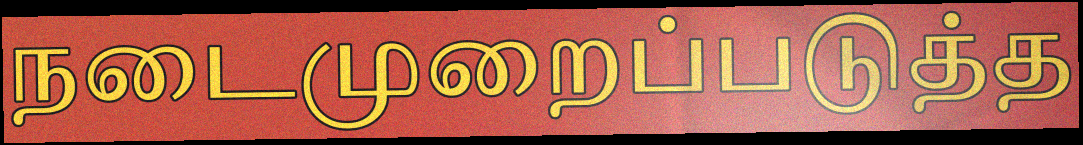
நடைமுறைப்படுத்த